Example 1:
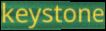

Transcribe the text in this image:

keystone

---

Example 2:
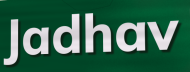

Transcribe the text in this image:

Jadhav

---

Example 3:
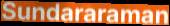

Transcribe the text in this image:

Sundararaman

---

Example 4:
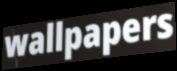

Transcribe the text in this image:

wallpapers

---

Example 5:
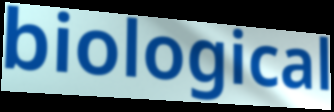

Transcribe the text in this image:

biological